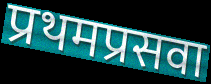
प्रथमप्रसवा